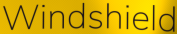
Windshield